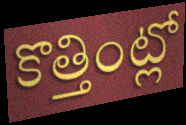
కొత్తింట్లో